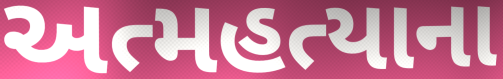
અત્મહત્યાના